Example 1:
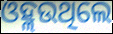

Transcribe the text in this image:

ଓହ୍ଲଉଥିଲେ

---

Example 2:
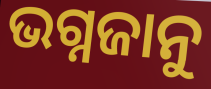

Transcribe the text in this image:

ଭଗ୍ନଜାନୁ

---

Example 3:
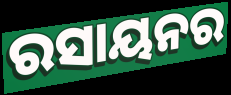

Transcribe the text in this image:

ରସାୟନର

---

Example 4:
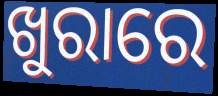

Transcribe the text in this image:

ଖୁରାରେ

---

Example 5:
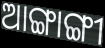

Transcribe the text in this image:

ଆଙ୍ଗାଙ୍ଗୀ